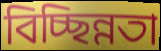
বিচ্ছিন্নতা